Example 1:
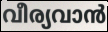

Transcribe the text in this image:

വീര്യവാൻ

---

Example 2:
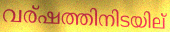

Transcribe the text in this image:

വര്ഷത്തിനിടയില്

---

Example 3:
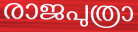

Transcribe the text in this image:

രാജപുത്രാ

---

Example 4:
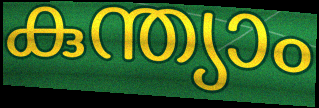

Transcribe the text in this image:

കുന്ത്യാം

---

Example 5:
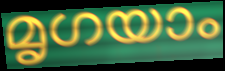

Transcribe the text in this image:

മൃഗയാം